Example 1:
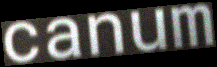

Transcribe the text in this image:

canum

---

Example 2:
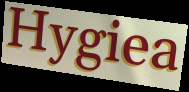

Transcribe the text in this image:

Hygiea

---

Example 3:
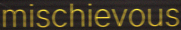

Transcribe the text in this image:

mischievous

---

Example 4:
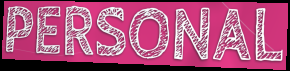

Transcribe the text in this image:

PERSONAL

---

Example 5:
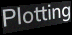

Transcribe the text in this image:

Plotting